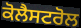
ਕੋਲੈਸਟਰੋਲ